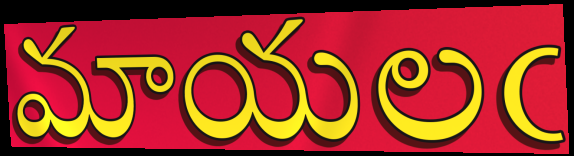
మాయలఁ